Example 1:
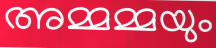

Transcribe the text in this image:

അമ്മമ്മയും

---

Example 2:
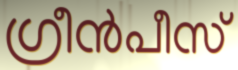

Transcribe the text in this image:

ഗ്രീൻപീസ്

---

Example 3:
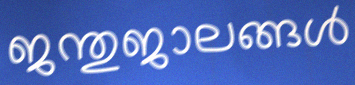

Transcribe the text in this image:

ജന്തുജാലങ്ങൾ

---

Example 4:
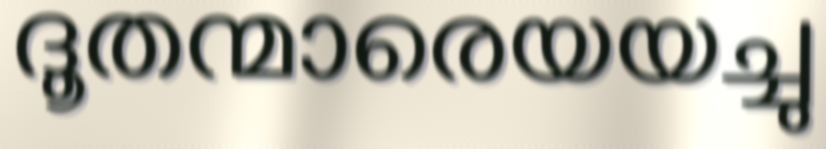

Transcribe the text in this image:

ദൂതന്മാരെയയച്ചു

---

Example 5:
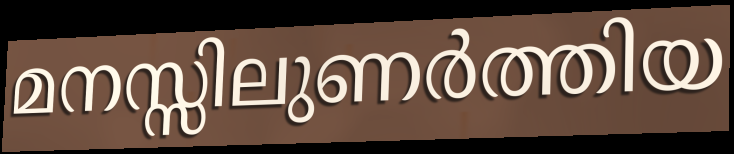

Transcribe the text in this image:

മനസ്സിലുണർത്തിയ